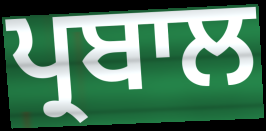
ਪ੍ਰਬਾਲ